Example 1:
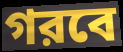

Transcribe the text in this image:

গরবে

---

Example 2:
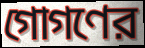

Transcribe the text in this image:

গোগণের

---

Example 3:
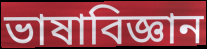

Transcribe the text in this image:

ভাষাবিজ্ঞান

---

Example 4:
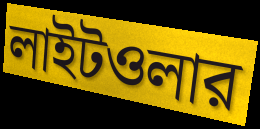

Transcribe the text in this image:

লাইটওলার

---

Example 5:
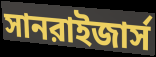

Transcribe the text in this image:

সানরাইজার্স